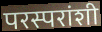
परस्परांशी